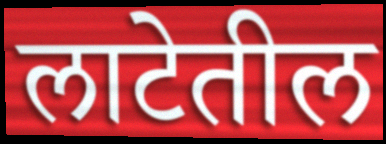
लाटेतील